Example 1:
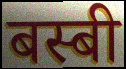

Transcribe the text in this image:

बस्बी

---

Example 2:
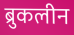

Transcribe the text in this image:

ब्रुकलीन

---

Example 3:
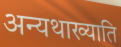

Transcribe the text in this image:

अन्यथाख्याति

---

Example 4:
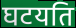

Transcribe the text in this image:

घटयति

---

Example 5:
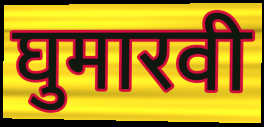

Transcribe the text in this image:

घुमारवी